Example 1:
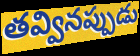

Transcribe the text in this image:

తవ్వినప్పుడు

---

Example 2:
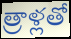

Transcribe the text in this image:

త్రాళ్లతో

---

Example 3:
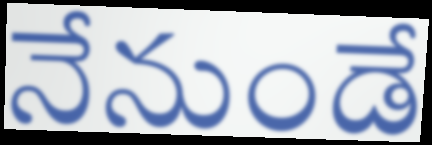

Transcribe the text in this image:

నేనుండే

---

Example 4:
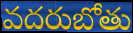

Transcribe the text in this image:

వదరుబోతు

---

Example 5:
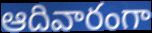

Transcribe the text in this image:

ఆదివారంగా